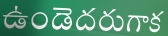
ఉండెదరుగాక